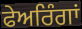
ਫੇਅਰਿੰਗਾਂ